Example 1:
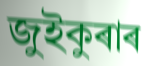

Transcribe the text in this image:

জুইকুৰাৰ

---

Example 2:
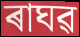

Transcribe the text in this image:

ৰাঘৱ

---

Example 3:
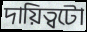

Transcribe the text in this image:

দায়িত্বটো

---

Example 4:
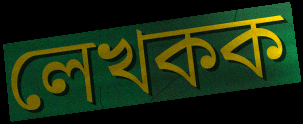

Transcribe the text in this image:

লেখকক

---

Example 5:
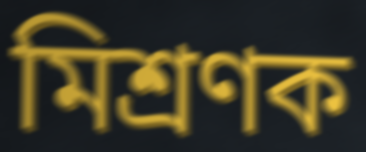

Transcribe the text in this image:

মিশ্ৰণক